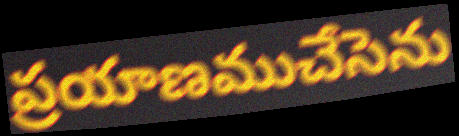
ప్రయాణముచేసెను